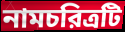
নামচরিত্রটি